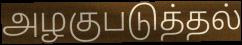
அழகுபடுத்தல்